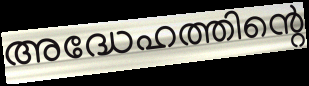
അദ്ധേഹത്തിന്റെ